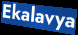
Ekalavya